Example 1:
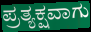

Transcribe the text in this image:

ಪ್ರತ್ಯಕ್ಷವಾಗು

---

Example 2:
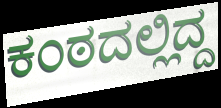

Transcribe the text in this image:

ಕಂಠದಲ್ಲಿದ್ದ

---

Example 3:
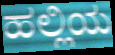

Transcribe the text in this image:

ಹಲ್ಲಿಯ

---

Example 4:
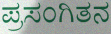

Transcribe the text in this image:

ಪ್ರಸಂಗಿತನ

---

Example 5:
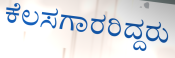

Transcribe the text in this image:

ಕೆಲಸಗಾರರಿದ್ದರು